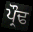
ਪ੍ਰੌਢ